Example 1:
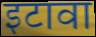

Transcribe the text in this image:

इटावा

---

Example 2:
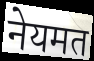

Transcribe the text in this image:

नेयमत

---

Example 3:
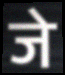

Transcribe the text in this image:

जे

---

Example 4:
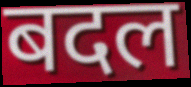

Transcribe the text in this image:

बदल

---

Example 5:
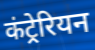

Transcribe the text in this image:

कंट्रेरियन